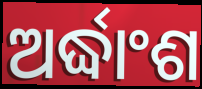
ଅର୍ଦ୍ଧାଂଶ